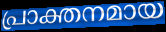
പ്രാക്തനമായ